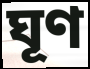
ঘূণ